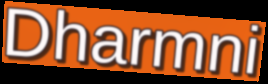
Dharmni